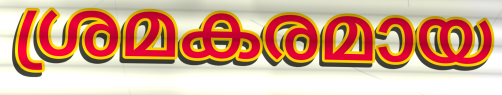
ശ്രമകരമായ